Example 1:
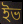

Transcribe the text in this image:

ইভ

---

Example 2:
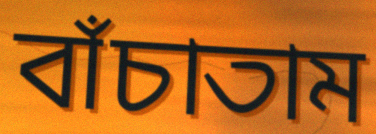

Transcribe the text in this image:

বাঁচাতাম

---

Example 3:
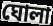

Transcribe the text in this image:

ঘোলা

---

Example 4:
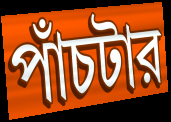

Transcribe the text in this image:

পাঁচটার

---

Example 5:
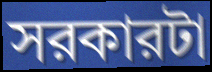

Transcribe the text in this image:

সরকারটা